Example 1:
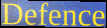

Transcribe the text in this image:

Defence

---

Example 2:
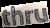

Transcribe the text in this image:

thru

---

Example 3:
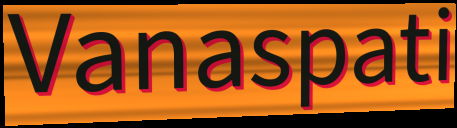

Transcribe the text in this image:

Vanaspati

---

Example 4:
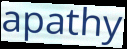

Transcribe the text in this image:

apathy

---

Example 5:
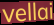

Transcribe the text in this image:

vellai